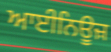
ਆਈਨਿਊਜ਼